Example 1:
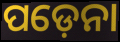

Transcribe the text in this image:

ପଡ଼େନା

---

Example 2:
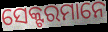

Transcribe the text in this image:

ସେକ୍ଟରମାନେ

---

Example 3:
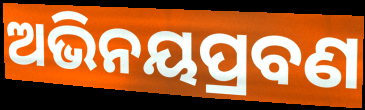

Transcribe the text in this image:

ଅଭିନୟପ୍ରବଣ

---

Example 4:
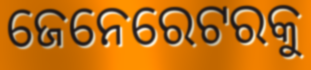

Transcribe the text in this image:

ଜେନେରେଟରକୁ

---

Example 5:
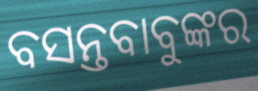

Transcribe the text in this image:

ବସନ୍ତବାବୁଙ୍କର